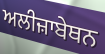
ਅਲੀਜ਼ਾਬੇਥਨ